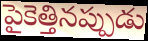
పైకెత్తినప్పుడు